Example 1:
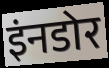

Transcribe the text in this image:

इंनडोर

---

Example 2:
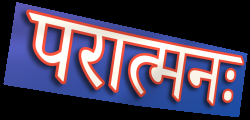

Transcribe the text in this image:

परात्मनः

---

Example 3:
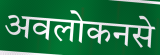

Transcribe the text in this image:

अवलोकनसे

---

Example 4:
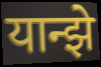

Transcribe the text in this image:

यान्झे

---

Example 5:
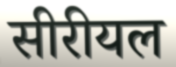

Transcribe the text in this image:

सीरीयल